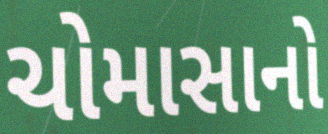
ચોમાસાનો